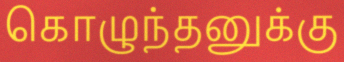
கொழுந்தனுக்கு